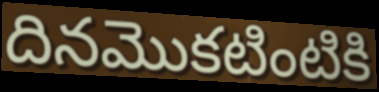
దినమొకటింటికి